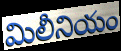
మిలీనియం